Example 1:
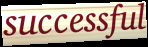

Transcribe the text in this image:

successful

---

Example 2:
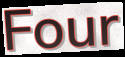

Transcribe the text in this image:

Four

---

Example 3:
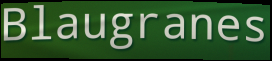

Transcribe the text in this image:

Blaugranes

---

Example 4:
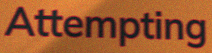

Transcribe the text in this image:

Attempting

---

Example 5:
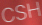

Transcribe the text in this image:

CSH